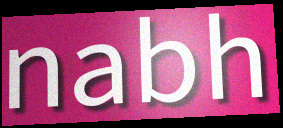
nabh